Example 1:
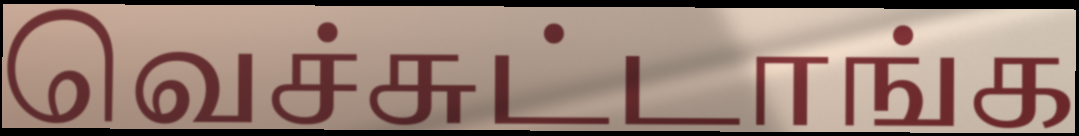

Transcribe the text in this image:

வெச்சுட்டாங்க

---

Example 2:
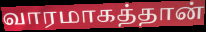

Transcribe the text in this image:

வாரமாகத்தான்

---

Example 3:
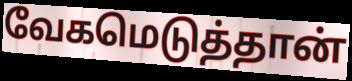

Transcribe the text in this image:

வேகமெடுத்தான்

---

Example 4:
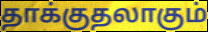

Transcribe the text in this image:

தாக்குதலாகும்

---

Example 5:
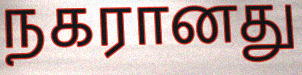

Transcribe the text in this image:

நகரானது